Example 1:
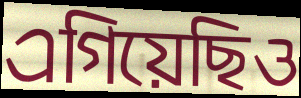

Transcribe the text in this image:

এগিয়েছিও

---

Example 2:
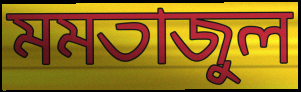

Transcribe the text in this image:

মমতাজুল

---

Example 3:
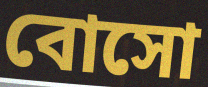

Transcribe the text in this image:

বোসো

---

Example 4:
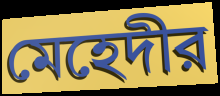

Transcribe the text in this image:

মেহেদীর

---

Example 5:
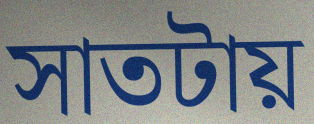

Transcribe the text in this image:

সাতটায়